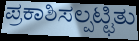
ಪ್ರಕಾಶಿಸಲ್ಪಟ್ಟಿತು